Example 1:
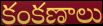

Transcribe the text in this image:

కంకణాలు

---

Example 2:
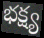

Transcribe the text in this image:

భక్ష్య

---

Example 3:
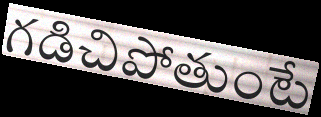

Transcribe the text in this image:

గడిచిపోతుంటే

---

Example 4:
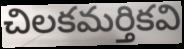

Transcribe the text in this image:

చిలకమర్తికవి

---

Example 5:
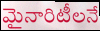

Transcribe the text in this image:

మైనారిటీలనే